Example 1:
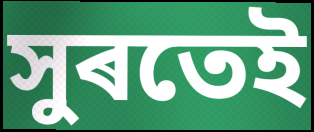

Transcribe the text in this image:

সুৰতেই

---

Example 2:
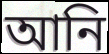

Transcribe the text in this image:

আনি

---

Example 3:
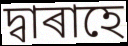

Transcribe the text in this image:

দ্বাৰাহে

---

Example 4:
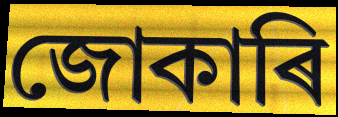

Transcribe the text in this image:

জোকাৰি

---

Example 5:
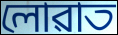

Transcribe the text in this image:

লোৱাত